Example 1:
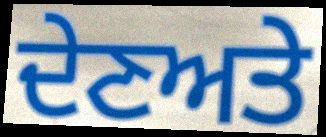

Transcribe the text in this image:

ਦੇਣਅਤੇ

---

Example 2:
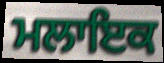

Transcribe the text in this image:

ਮਲਾਇਕ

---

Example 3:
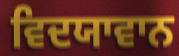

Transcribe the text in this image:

ਵਿਦਯਾਵਾਨ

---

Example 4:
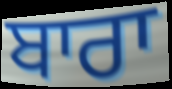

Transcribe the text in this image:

ਬਾਰਾ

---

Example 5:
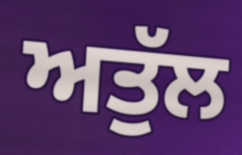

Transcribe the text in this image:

ਅਤੁੱਲ